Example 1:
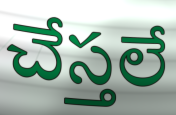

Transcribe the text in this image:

చేస్తలే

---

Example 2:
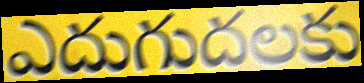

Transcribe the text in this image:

ఎదుగుదలకు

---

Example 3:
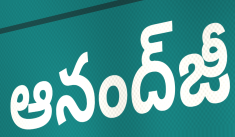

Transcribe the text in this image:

ఆనంద్‌జీ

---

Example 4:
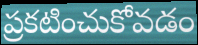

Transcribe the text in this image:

ప్రకటించుకోవడం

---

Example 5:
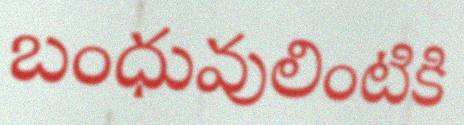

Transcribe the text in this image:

బంధువులింటికి